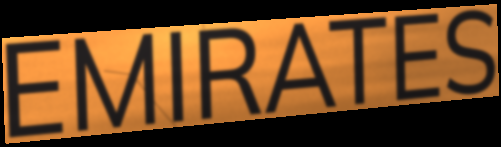
EMIRATES